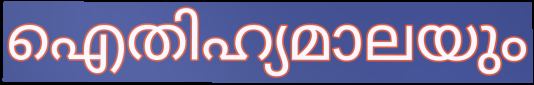
ഐതിഹ്യമാലയും